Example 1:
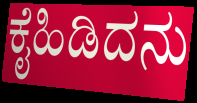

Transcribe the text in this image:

ಕೈಹಿಡಿದನು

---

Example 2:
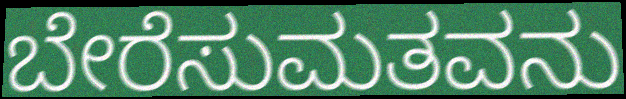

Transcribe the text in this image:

ಬೇರೆಸುಮತವನು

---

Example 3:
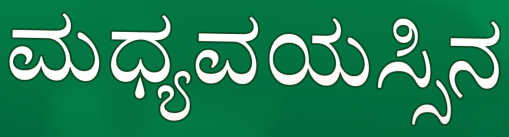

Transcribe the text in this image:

ಮಧ್ಯವಯಸ್ಸಿನ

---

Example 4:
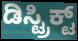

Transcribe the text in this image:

ಡಿಸ್ಟ್ರಿಕ್ಟ್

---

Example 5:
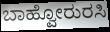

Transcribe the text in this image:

ಬಾಹ್ವೋರುರಸಿ